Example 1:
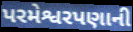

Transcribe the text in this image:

પરમેશ્વરપણાની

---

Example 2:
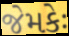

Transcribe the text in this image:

જેમકેઃ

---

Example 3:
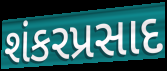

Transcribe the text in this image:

શંકરપ્રસાદ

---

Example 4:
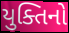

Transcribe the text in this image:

યુક્તિનો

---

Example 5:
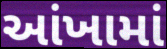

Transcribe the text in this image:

આંખામાં